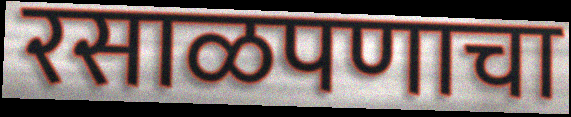
रसाळपणाचा